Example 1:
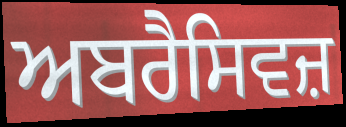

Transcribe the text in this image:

ਅਬਰੈਸਿਵਜ਼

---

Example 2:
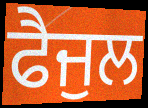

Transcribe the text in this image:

ਫੈਜੁਲ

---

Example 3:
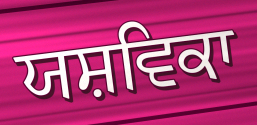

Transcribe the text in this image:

ਯਸ਼ਵਿਕਾ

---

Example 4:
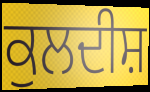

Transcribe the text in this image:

ਕੁਲਦੀਸ਼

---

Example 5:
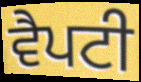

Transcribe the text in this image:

ਵੈਪਟੀ